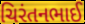
ચિરંતનભાઈ